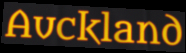
Auckland